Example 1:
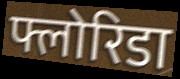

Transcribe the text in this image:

फ्लोरिडा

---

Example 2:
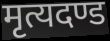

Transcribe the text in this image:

मृत्यदण्ड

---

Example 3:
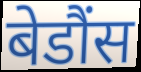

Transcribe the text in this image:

बेडौंस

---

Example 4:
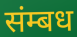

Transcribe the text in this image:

संम्बध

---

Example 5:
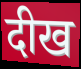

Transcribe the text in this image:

दीख